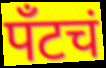
पँटचं